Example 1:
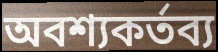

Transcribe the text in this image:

অবশ্যকর্তব্য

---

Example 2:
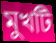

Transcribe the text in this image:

মুখটি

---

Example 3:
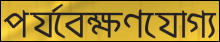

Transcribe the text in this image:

পর্যবেক্ষণযোগ্য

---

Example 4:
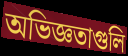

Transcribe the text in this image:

অভিজ্ঞতাগুলি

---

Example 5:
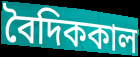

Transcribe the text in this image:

বৈদিককাল